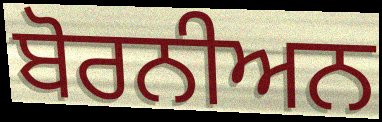
ਬੋਰਨੀਅਨ